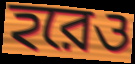
হরেও